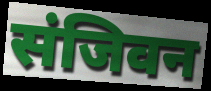
संजिवन